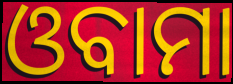
ଓବାମା